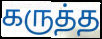
கருத்த